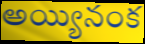
అయ్యినంక